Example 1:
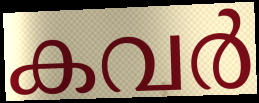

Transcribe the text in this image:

കവർ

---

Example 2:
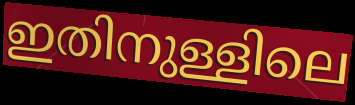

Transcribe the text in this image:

ഇതിനുള്ളിലെ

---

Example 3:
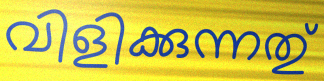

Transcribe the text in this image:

വിളിക്കുന്നതു്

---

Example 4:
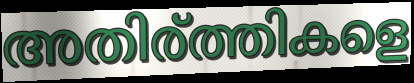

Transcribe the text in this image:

അതിര്ത്തികളെ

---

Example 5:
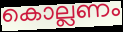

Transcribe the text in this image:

കൊല്ലണം